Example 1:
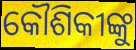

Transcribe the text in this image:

କୌଶିକୀଙ୍କୁ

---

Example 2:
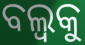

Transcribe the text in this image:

ବଲ୍ବକୁ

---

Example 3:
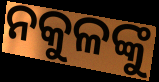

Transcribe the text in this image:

ନକୁଳଙ୍କୁ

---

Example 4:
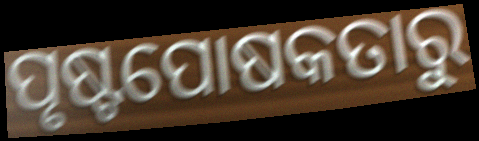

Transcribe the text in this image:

ପୃଷ୍ଟପୋଷକତାରୁ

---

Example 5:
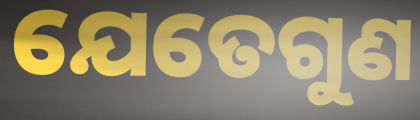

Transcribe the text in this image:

ଯେତେଗୁଣ